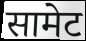
सामेट